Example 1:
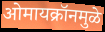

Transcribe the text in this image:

ओमायक्रॉनमुळे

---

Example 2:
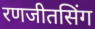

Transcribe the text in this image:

रणजीतसिंग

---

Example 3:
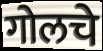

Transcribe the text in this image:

गोलचे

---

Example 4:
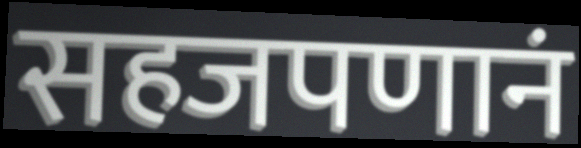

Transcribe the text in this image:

सहजपणानं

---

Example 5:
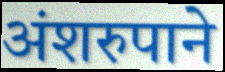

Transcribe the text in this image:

अंशरुपाने